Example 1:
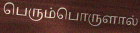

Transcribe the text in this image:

பெரும்பொருளால்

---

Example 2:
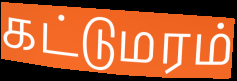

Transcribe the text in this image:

கட்டுமரம்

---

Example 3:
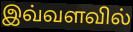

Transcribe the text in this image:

இவ்வளவில்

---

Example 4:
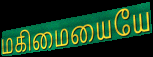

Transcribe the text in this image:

மகிமையையே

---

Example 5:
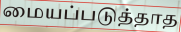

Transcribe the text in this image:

மையப்படுத்தாத